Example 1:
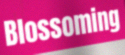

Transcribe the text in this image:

Blossoming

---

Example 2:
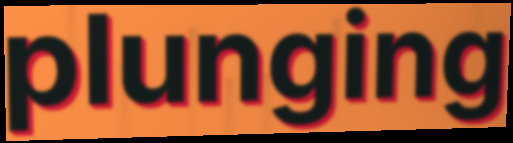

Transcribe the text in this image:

plunging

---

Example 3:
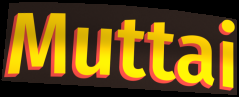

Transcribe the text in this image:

Muttai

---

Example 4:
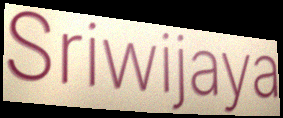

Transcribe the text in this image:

Sriwijaya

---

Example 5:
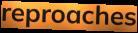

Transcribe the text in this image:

reproaches